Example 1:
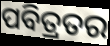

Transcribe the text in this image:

ପବିତ୍ରତର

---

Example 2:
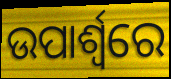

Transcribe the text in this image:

ଉପାର୍ଶ୍ଵରେ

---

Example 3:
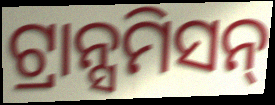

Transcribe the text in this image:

ଟ୍ରାନ୍ସମିସନ୍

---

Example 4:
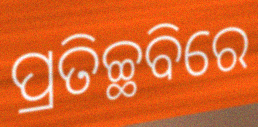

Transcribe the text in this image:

ପ୍ରତିଚ୍ଛବିରେ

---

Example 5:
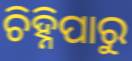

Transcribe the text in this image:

ଚିହ୍ନିପାରୁ